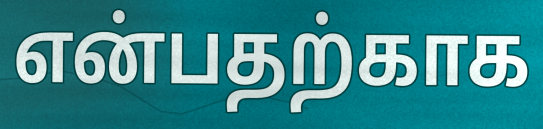
என்பதற்காக